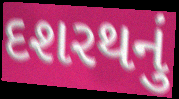
દશરથનું